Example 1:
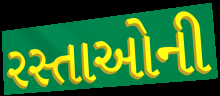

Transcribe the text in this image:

રસ્તાઓની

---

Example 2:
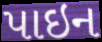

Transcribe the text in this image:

પાઇન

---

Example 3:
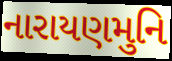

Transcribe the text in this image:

નારાયણમુનિ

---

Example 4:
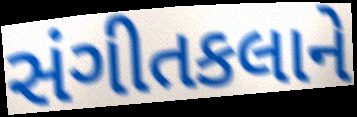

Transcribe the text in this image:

સંગીતકલાને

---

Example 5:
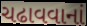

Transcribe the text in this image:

ચઢાવવાનાં